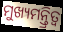
ମୁଖ୍ୟମନ୍ତ୍ରିତ୍ୱ